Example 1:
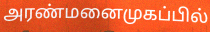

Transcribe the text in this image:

அரண்மனைமுகப்பில்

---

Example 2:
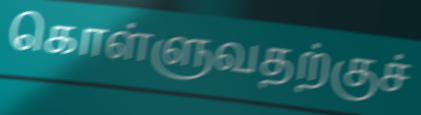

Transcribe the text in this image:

கொள்ளுவதற்குச்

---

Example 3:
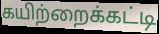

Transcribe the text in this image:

கயிற்றைக்கட்டி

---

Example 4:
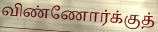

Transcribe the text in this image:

விண்ணோர்க்குத்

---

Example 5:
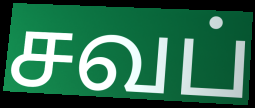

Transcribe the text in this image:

சவப்